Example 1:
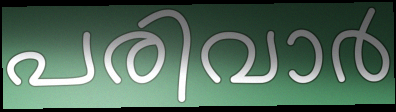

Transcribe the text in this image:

പരിവാർ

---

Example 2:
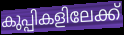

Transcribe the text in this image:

കുപ്പികളിലേക്ക്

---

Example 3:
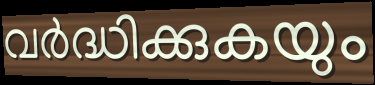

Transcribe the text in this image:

വർദ്ധിക്കുകയും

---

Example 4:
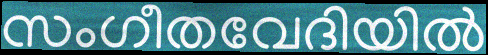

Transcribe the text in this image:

സംഗീതവേദിയിൽ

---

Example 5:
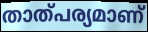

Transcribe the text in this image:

താത്പര്യമാണ്